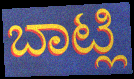
ಬಾಟ್ಲಿ